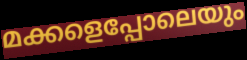
മക്കളെപ്പോലെയും